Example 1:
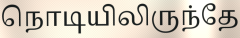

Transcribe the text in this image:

நொடியிலிருந்தே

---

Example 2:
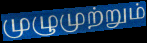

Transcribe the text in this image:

முழுமுற்றும்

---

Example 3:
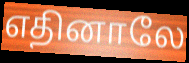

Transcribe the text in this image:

எதினாலே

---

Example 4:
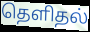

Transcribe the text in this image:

தெளிதல்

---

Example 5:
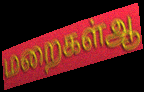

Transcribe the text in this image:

மறைகள்ஆ